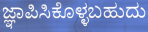
ಜ್ಞಾಪಿಸಿಕೊಳ್ಳಬಹುದು